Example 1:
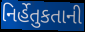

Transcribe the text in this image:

નિર્હેતુકતાની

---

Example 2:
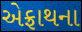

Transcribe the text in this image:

એફ્રાથના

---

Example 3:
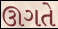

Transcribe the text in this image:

ઊગતે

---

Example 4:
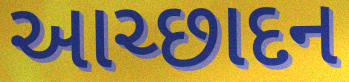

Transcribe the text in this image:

આચ્છાદન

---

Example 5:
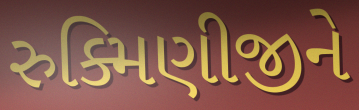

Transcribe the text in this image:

રુક્મિણીજીને